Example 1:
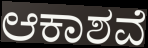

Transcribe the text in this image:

ಆಕಾಶವೆ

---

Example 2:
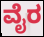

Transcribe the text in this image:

ವೈರ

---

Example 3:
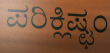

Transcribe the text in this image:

ಪರಿಕ್ಲಿಷ್ಟಂ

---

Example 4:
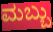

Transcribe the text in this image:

ಮಬ್ಬು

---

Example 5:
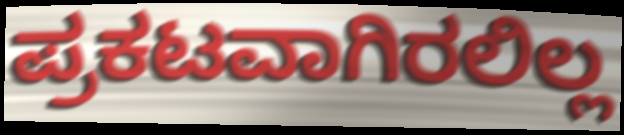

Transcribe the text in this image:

ಪ್ರಕಟವಾಗಿರಲಿಲ್ಲ